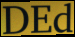
DEd